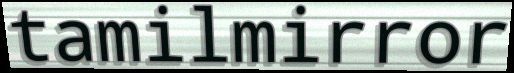
tamilmirror